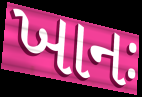
ખાનઃ